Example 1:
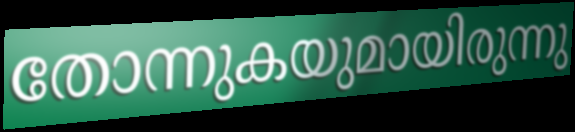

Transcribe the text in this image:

തോന്നുകയുമായിരുന്നു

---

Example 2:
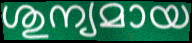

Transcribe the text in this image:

ശുന്യമായ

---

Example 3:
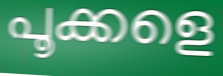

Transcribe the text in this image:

പൂക്കളെ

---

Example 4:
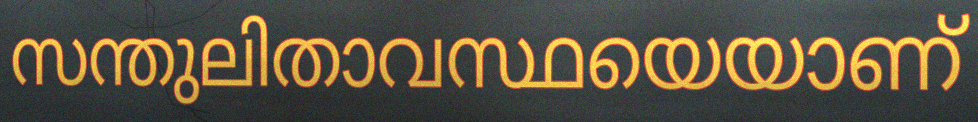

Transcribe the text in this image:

സന്തുലിതാവസ്ഥയെയാണ്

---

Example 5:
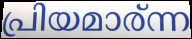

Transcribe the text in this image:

പ്രിയമാര്ന്ന